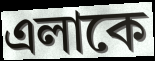
এলাকে